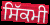
ਸਿੱਕਮੀ